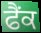
ਫੈਂਕ